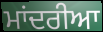
ਮਾਂਦਰੀਆ